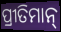
ପ୍ରୀତିମାନ୍